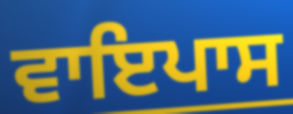
ਵਾਇਪਾਸ